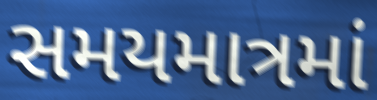
સમયમાત્રમાં